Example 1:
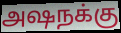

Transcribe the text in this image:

அஷநக்கு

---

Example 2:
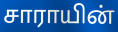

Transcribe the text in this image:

சாராயின்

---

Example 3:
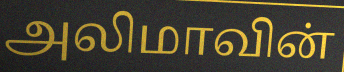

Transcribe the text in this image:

அலிமாவின்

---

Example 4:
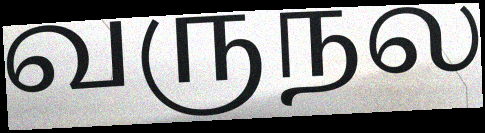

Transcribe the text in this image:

வருநல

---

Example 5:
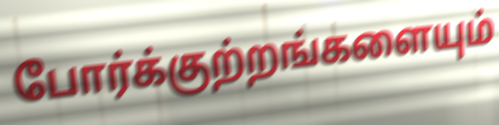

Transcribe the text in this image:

போர்க்குற்றங்களையும்